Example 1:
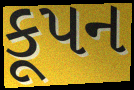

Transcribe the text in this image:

કૂપન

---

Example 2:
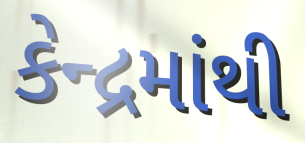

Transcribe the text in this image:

કેન્દ્રમાંથી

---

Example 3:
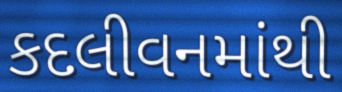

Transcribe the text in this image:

કદલીવનમાંથી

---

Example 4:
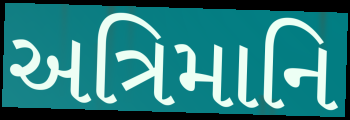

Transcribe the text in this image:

અત્રિમાનિ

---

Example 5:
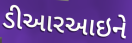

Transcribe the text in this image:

ડીઆરઆઇને